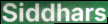
Siddhars